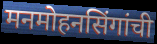
मनमोहनसिंगांची